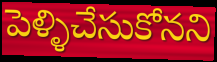
పెళ్ళిచేసుకోనని